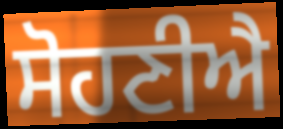
ਸੋਹਣੀਐ